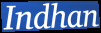
Indhan